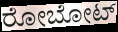
ರೋಬೋಟ್